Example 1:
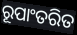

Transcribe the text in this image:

ରୂପାଂତରିତ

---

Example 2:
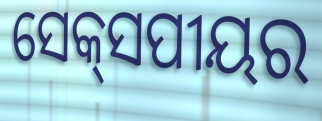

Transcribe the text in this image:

ସେକ୍‌ସପୀୟର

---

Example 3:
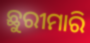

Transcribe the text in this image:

ଛୁରୀମାରି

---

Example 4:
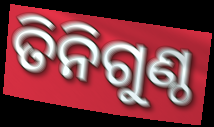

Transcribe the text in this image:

ତିନିଗୁଣ୍ଠ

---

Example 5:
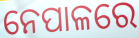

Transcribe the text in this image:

ନେପାଳରେ